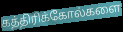
கத்திரிக்கோல்களை